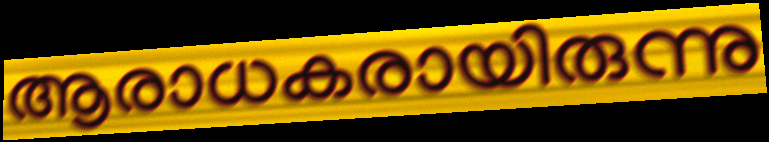
ആരാധകരായിരുന്നു